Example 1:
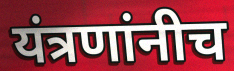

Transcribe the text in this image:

यंत्रणांनीच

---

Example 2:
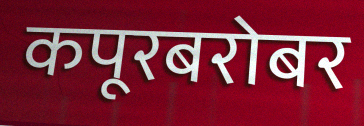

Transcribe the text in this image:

कपूरबरोबर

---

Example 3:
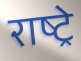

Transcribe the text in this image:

राष्ट्रे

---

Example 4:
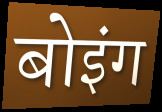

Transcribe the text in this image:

बोइंग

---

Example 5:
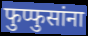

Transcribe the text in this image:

फुप्फुसांना